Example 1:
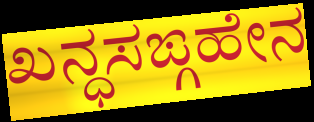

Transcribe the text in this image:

ಖನ್ಧಸಙ್ಗಹೇನ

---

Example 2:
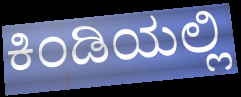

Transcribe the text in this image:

ಕಿಂಡಿಯಲ್ಲಿ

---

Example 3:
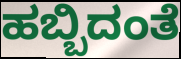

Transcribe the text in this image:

ಹಬ್ಬಿದಂತೆ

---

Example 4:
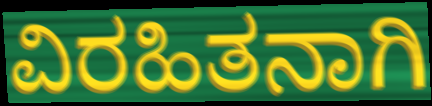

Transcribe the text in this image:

ವಿರಹಿತನಾಗಿ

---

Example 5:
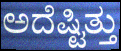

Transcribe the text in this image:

ಅದೆಷ್ಟಿತ್ತು